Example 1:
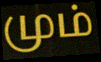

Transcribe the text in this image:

மும்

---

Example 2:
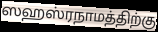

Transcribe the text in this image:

ஸஹஸ்ரநாமத்திற்கு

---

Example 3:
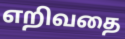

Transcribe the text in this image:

எறிவதை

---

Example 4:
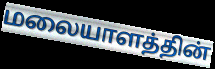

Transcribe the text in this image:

மலையாளத்தின்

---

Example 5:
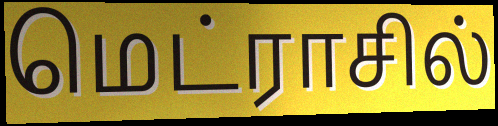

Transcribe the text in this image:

மெட்ராசில்